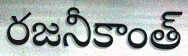
రజనీకాంత్